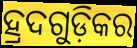
ହ୍ରଦଗୁଡ଼ିକର